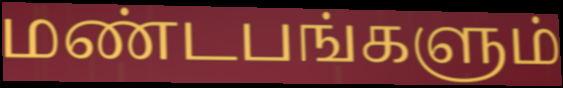
மண்டபங்களும்